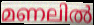
മണലിൽ